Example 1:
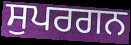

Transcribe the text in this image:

ਸੁਪਰਗਨ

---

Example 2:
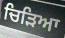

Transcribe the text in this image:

ਚਿੜਿਆ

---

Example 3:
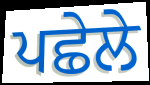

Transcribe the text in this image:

ਪਛੇਲੇ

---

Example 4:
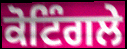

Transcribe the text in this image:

ਕੋਟਿੰਗਲੇ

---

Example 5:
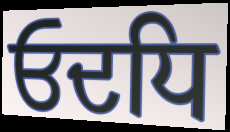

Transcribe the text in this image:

ਓਦਧਿ